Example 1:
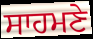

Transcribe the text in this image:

ਸਾਹਮਣੇ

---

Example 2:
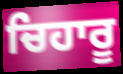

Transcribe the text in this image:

ਚਿਹਾਰੂ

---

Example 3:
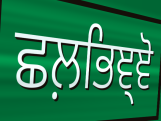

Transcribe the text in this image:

ਛਲ਼ਭਿਞ੍ਞੋ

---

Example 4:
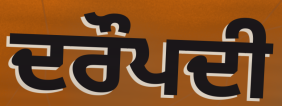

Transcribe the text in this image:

ਦਰੌਪਦੀ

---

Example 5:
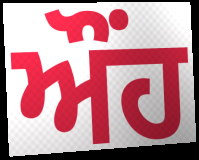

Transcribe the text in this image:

ਔਂਹ